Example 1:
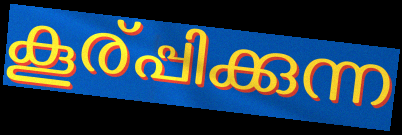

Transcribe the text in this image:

കൂര്പ്പിക്കുന്ന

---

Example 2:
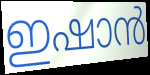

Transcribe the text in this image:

ഇഷാൻ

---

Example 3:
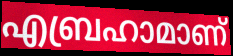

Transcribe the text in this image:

എബ്രഹാമാണ്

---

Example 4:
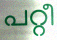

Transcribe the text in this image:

പറ്റീ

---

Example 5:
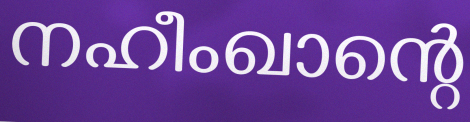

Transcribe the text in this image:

നഹീംഖാന്റെ